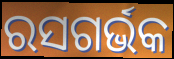
ରସଗର୍ଭକ